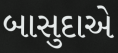
બાસુદાએ